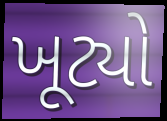
ખૂટ્યો